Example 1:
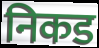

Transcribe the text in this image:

निकड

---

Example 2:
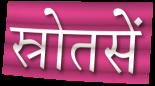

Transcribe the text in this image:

स्रोतसें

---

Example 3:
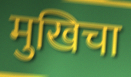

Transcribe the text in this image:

मुखिचा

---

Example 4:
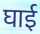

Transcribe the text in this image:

घाई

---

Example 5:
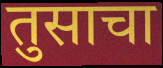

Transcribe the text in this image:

तुसाचा